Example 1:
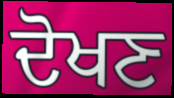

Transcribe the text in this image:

ਦੋਖਣ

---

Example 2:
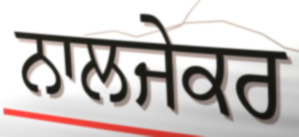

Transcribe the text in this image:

ਨਾਲਜੇਕਰ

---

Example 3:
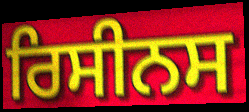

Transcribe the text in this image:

ਰਿਸੀਨਸ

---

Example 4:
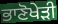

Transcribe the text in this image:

ਭਾਣੋਖੇੜੀ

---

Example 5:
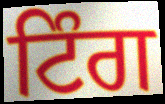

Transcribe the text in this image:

ਟਿੰਗ